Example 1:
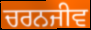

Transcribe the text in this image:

ਚਰਨਜੀਵ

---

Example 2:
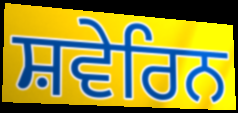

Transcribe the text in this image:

ਸ਼ਵੇਰਿਨ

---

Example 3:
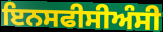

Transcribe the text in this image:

ਇਨਸਫੀਸੀਅੰਸੀ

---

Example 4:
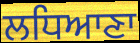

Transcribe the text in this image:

ਲਧਿਆਣਾ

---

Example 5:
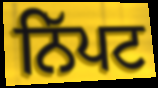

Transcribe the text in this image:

ਨਿੱਪਟ